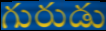
గురుడు